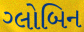
ગ્લોબિન